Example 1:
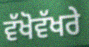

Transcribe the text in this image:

ਵੱਖੋਵੱਖਰੇ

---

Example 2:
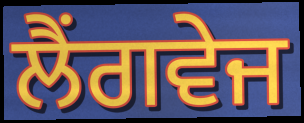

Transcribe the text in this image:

ਲੈਂਗਵੇਜ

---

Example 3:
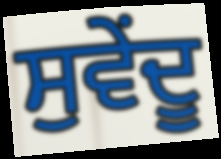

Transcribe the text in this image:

ਸੁਵੇਂਦੂ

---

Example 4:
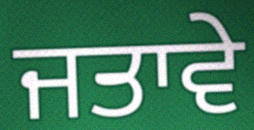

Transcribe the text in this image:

ਜਤਾਵੇ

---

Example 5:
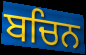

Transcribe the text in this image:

ਬਚਿਨ